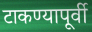
टाकण्यापूर्वी